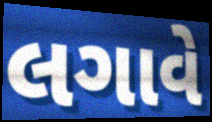
લગાવે